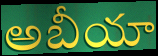
అబీయా